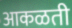
आकळती